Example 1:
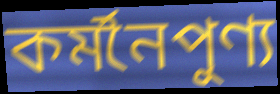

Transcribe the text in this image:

কর্মনৈপুণ্য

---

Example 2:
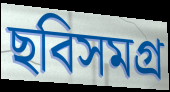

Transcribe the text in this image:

ছবিসমগ্র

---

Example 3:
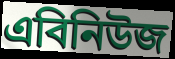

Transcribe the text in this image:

এবিনিউজ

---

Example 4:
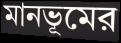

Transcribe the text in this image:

মানভূমের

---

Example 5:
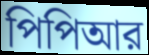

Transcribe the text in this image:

পিপিআর